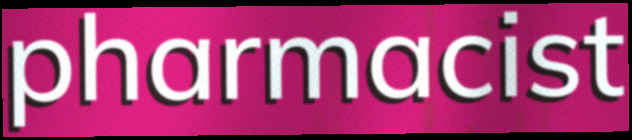
pharmacist